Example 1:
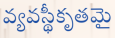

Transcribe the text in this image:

వ్యవస్థీకృతమై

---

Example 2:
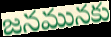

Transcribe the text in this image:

జనమునకు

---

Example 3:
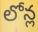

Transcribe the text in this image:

లోన్ల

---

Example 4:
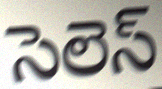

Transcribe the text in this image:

సెలెస్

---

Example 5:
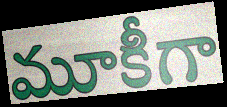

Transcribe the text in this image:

మూకీగా